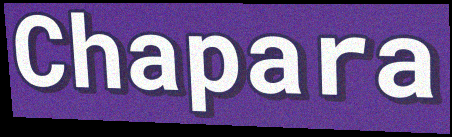
Chapara